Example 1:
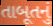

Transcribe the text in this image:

તાબૂતનું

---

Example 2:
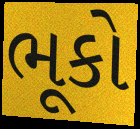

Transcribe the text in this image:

ભૂકો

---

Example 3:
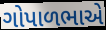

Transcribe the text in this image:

ગોપાળભાએ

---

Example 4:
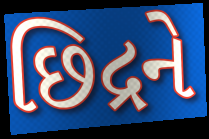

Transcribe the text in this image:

છિદ્રને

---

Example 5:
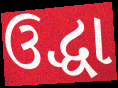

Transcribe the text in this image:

ઉદ્ધા